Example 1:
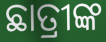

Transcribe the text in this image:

ଛାତ୍ରୀଙ୍କ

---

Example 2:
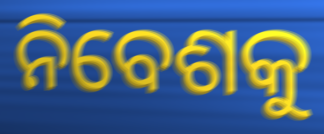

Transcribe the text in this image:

ନିବେଶକୁ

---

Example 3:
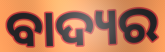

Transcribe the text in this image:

ବାଦ୍ୟର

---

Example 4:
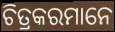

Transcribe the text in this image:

ଚିତ୍ରକରମାନେ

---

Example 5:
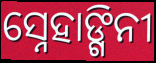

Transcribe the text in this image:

ସ୍ନେହାଙ୍ଗିନୀ